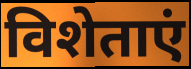
विशेताएं